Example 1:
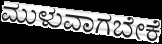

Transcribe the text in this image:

ಮುಳುವಾಗಬೇಕೆ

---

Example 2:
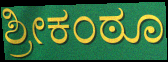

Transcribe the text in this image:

ಶ್ರೀಕಂಠೂ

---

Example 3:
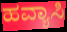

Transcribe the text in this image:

ಹವ್ಯಾಸಿ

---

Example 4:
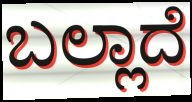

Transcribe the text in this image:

ಬಲ್ಲಾದೆ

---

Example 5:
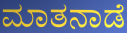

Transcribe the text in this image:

ಮಾತನಾಡೆ